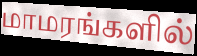
மாமரங்களில்